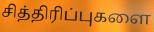
சித்திரிப்புகளை